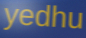
yedhu